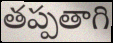
తప్పతాగి